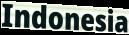
Indonesia